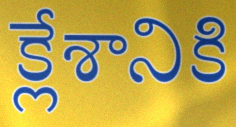
క్లేశానికి